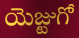
యెజ్టుగో